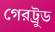
গেরট্রুড